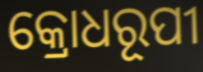
କ୍ରୋଧରୂପୀ